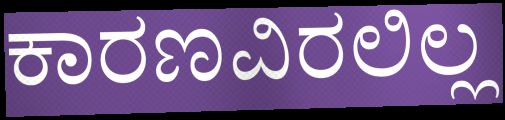
ಕಾರಣವಿರಲಿಲ್ಲ